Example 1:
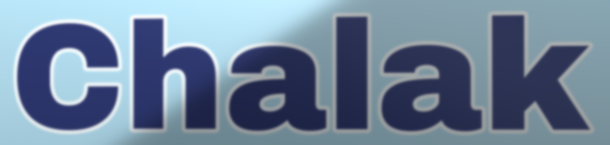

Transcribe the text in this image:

Chalak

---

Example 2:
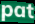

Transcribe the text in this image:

pat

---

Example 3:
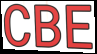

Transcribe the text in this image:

CBE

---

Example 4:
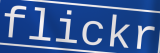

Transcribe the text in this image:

flickr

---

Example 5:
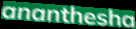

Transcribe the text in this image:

ananthesha